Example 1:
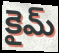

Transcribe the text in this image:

కైమ్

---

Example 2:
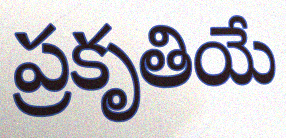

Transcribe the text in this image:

ప్రకృతియే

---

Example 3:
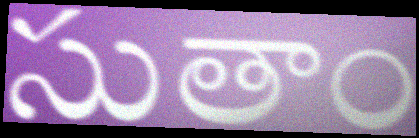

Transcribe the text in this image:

సుతాం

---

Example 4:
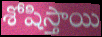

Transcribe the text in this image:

శోషిస్తాయి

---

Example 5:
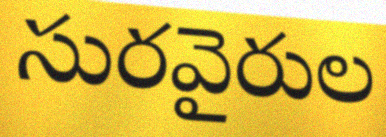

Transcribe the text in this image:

సురవైరుల